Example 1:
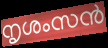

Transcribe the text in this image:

നൃശംസൻ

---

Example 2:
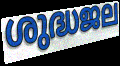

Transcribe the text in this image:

ശുദ്ധജല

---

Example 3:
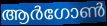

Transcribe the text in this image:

ആർഗോൺ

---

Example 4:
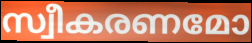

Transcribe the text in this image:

സ്വീകരണമോ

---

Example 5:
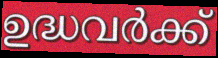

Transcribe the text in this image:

ഉദ്ധവർക്ക്